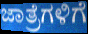
ಜಾತ್ರೆಗಳಿಗೆ